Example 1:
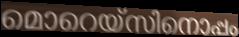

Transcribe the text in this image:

മൊറെയ്സിനൊപ്പം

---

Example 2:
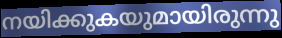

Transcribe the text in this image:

നയിക്കുകയുമായിരുന്നു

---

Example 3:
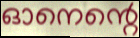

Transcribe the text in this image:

ഓനെന്റെ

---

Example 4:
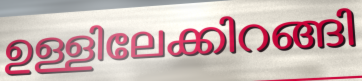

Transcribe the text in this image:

ഉള്ളിലേക്കിറങ്ങി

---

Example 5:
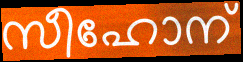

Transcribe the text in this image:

സീഹോന്